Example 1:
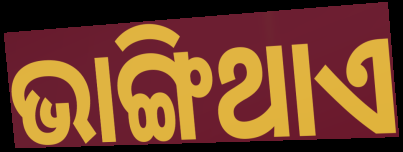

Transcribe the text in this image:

ଭାଙ୍ଗିଥାଏ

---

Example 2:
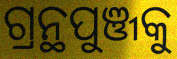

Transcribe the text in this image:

ଗ୍ରନ୍ଥପୁଞ୍ଜକୁ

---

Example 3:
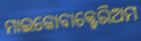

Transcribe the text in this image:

ମାଇକୋବାକ୍ଟେରିଅମ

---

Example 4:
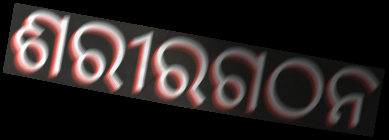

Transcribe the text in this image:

ଶରୀରଗଠନ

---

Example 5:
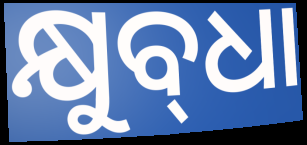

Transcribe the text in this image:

କ୍ଷୁବ୍‌ଧା